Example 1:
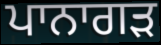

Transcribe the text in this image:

ਪਾਨਾਗੜ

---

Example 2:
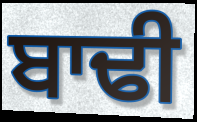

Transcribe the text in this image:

ਬਾਢੀ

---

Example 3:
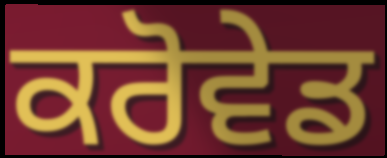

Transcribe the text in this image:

ਕਰੋਵੇਡ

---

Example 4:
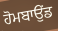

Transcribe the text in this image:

ਹੋਮਬਾਉਂਡ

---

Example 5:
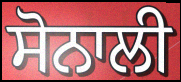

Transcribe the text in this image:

ਸੋਨਾਲੀ